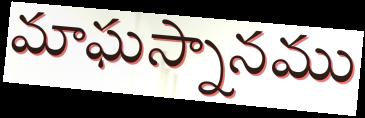
మాఘస్నానము